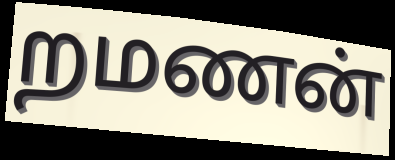
றமணன்